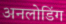
अनलोडिंग